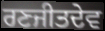
ਰਣਜੀਤਦੇਵ